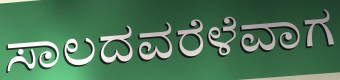
ಸಾಲದವರೆಳೆವಾಗ